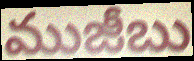
ముజీబు